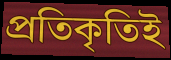
প্রতিকৃতিই